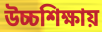
উচ্চশিক্ষায়